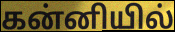
கன்னியில்